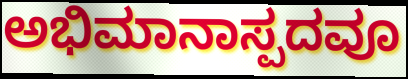
ಅಭಿಮಾನಾಸ್ಪದವೂ